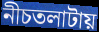
নীচতলাটায়